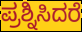
ಪ್ರಶ್ನಿಸಿದರೆ